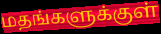
மதங்களுக்குள்